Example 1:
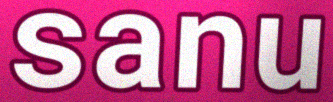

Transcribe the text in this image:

sanu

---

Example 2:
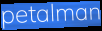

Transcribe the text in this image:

petalman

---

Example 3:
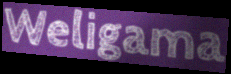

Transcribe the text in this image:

Weligama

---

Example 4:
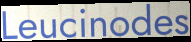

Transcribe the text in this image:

Leucinodes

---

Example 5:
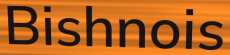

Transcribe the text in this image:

Bishnois